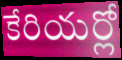
కేరియర్లో